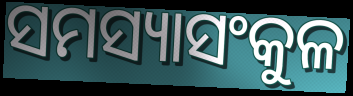
ସମସ୍ୟାସଂକୁଳ